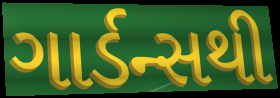
ગાર્ડન્સથી